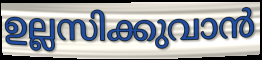
ഉല്ലസിക്കുവാൻ